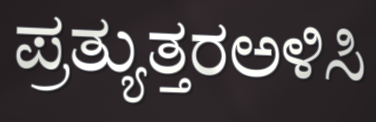
ಪ್ರತ್ಯುತ್ತರಅಳಿಸಿ